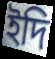
ইদি